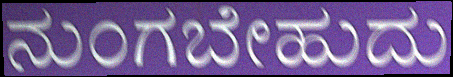
ನುಂಗಬೇಹುದು